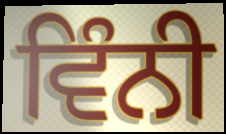
ਵਿੰਨੀ